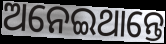
ଅନେଇଥାନ୍ତେ